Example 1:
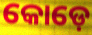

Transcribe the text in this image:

କୋଡ଼େ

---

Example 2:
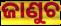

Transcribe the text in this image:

ଜାଣୁଚ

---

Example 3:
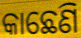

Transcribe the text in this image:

କାଛେଣି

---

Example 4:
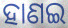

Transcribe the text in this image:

ହାଣଇ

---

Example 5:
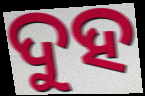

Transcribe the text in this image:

ଦୁହ